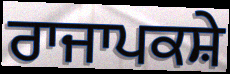
ਰਾਜਾਪਕਸ਼ੇ